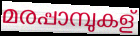
മരപ്പാമ്പുകള്